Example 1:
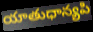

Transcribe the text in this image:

యాతుధాన్యపి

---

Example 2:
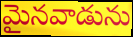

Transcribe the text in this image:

మైనవాడును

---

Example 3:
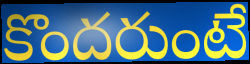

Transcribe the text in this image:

కొందరుంటే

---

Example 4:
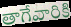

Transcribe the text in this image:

తాగేవారికి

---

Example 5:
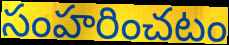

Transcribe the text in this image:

సంహరించటం